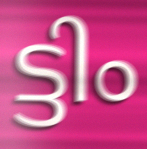
ട്ടിം